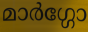
മാർഗ്ഗോ